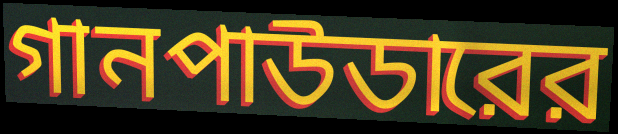
গানপাউডারের